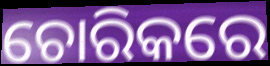
ଚୋରିକରେ